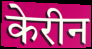
केरीन